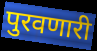
पुरवणारी